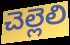
చెల్లెలి